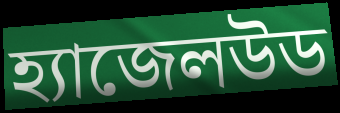
হ্যাজেলউড